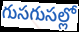
గుసగుసల్లో